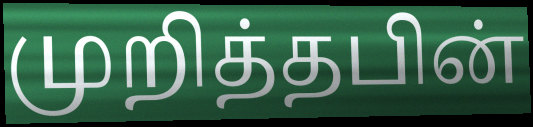
முறித்தபின்